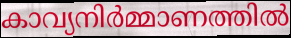
കാവ്യനിർമ്മാണത്തിൽ